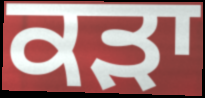
ਕੜਾ